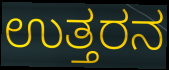
ಉತ್ತರನ